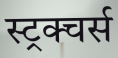
स्ट्रक्चर्स